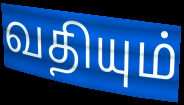
வதியும்